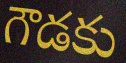
గౌడకు